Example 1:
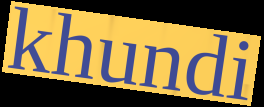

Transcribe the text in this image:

khundi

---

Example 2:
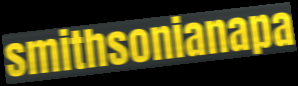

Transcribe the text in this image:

smithsonianapa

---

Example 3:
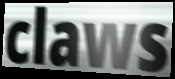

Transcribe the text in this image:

claws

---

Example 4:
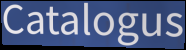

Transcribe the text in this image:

Catalogus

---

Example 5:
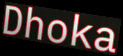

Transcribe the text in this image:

Dhoka